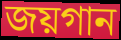
জয়গান